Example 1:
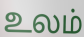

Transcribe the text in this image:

உலம்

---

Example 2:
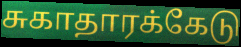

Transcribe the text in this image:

சுகாதாரக்கேடு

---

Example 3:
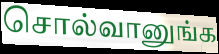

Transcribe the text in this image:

சொல்வானுங்க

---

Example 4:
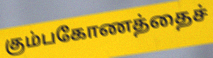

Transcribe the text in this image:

கும்பகோணத்தைச்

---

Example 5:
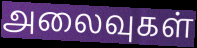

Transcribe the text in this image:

அலைவுகள்